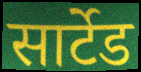
सार्टेड